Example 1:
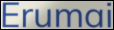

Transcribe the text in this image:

Erumai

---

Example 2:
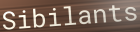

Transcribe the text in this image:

Sibilants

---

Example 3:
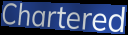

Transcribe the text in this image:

Chartered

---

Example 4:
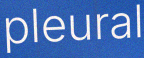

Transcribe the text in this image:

pleural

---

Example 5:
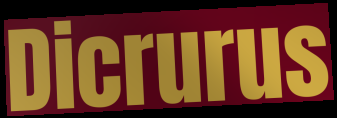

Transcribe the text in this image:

Dicrurus